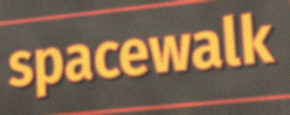
spacewalk